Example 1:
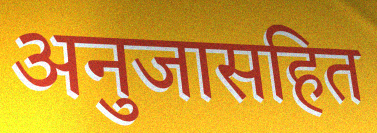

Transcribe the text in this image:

अनुजासहित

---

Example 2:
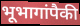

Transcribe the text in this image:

भूभागांपैकी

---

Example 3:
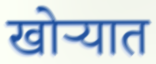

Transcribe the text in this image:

खोऱ्यात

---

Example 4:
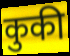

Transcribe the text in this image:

कुकी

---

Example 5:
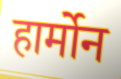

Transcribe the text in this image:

हार्मोन